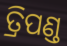
ତ୍ରିପଣ୍ଡ